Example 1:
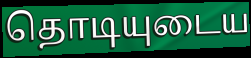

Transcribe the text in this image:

தொடியுடைய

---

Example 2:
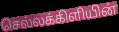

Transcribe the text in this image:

செல்லக்கிளியின்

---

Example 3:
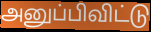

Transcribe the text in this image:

அனுப்பிவிட்டு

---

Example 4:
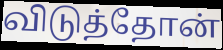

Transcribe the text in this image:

விடுத்தோன்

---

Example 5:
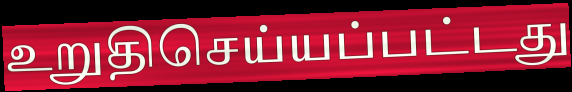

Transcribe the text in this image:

உறுதிசெய்யப்பட்டது